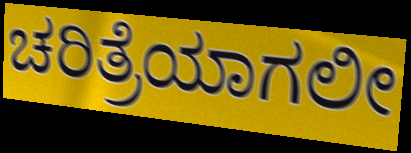
ಚರಿತ್ರೆಯಾಗಲೀ